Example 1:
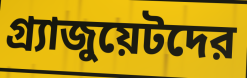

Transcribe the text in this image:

গ্র্যাজুয়েটদের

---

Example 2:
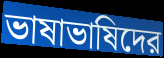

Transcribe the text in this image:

ভাষাভাষিদের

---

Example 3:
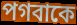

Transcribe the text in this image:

পগবাকে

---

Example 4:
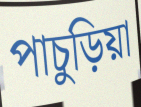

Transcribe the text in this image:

পাচুড়িয়া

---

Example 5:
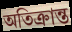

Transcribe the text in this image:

অতিক্রান্ত